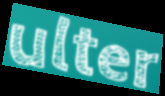
ulter